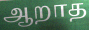
ஆறாத